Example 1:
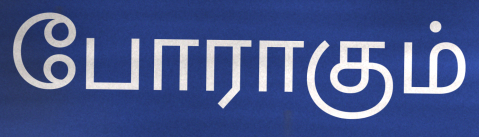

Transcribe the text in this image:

போராகும்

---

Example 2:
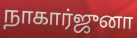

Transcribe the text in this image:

நாகார்ஜுனா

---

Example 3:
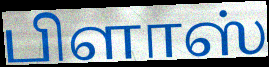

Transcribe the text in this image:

பிளாஸ்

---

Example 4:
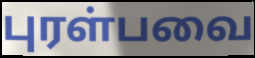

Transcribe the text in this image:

புரள்பவை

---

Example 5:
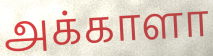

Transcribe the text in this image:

அக்காளா